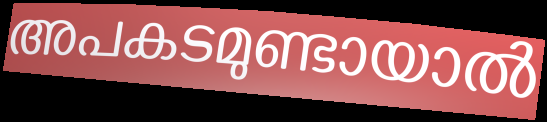
അപകടമുണ്ടായാൽ